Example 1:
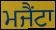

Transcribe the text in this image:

ਮਜੈਂਟਾ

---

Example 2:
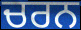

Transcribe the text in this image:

ਚਰਨ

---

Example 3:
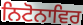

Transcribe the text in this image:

ਨਿਟੋਨਾਵਿਰ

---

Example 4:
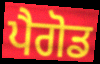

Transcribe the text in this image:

ਪੈਗੋਡ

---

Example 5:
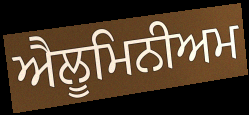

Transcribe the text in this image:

ਐਲੂਮਿਨੀਅਮ